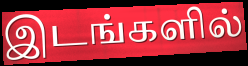
இடங்களில்